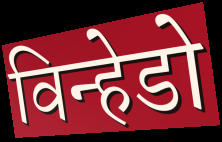
विन्हेडो